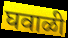
घवाळी